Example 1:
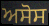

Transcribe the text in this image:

ਅਸੋਸ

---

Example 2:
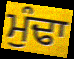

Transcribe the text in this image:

ਮੁੰਢਾ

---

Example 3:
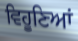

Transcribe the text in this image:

ਵਿਹੂਣਿਆਂ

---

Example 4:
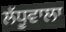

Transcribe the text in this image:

ਲੱਧੂਵਾਲਾ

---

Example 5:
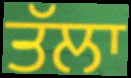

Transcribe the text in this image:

ਤੱਲਾ